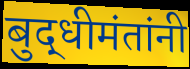
बुद्धीमंतांनी